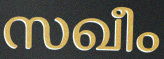
സഖീം